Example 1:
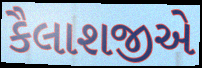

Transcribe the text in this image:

કૈલાશજીએ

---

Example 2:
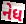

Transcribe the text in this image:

નેધ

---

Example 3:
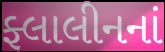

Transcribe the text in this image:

ફ્લાલીનનાં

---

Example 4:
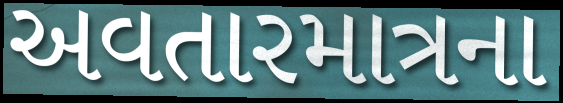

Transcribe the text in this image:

અવતારમાત્રના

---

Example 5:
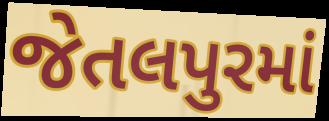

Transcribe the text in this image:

જેતલપુરમાં